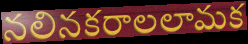
నలినకరాలలామక